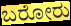
ಬರೋರು